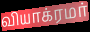
வியாக்ரமர்